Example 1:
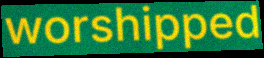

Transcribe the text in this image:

worshipped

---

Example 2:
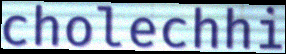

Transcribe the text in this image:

cholechhi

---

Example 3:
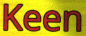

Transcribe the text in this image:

Keen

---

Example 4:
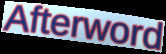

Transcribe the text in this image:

Afterword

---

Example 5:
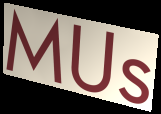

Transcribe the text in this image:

MUs